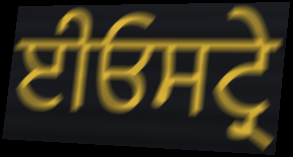
ਈਓਸਟ੍ਰੇ